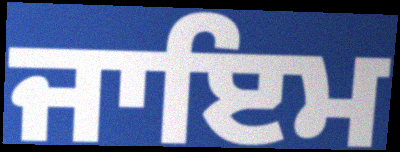
ਜਾਇਮ